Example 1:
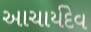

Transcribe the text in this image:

આચાર્યદેવ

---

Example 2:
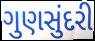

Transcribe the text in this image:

ગુણસુંદરી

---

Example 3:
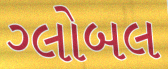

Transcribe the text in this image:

ગ્લોબલ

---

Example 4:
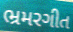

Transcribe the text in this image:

ભ્રમરગીત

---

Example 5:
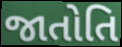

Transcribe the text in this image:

જાતોતિ